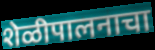
शेळीपालनाचा